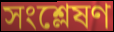
সংশ্লেষণ